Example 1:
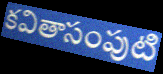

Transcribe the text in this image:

కవితాసంపుటి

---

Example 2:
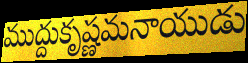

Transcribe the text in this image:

ముద్దుకృష్ణమనాయుడు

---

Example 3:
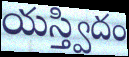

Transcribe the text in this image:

యస్త్విదం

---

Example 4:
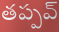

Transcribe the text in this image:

తప్పవ్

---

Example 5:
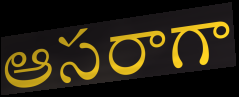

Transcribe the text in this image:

ఆసరాగా